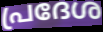
പ്രദേശ